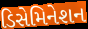
ડિસેમિનેશન